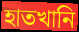
হাতখানি